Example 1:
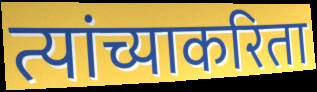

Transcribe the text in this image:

त्यांच्याकरिता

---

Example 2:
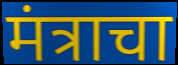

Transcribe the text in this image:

मंत्राचा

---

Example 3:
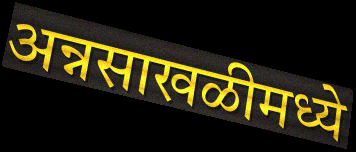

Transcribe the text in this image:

अन्नसाखळीमध्ये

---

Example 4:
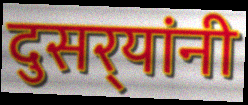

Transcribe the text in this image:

दुसर्‍यांनी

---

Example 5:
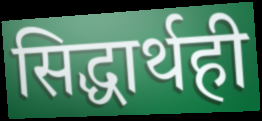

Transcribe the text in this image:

सिद्धार्थही